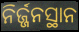
ନିର୍ଜ୍ଜନସ୍ଥାନ